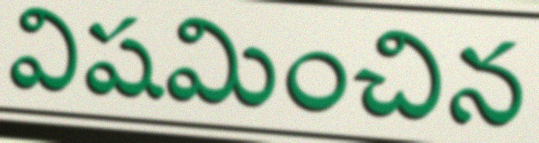
విషమించిన